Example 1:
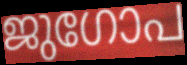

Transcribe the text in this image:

ജുഗോപ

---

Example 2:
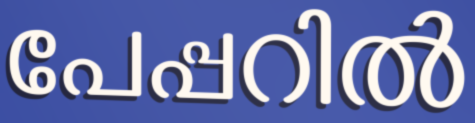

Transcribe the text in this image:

പേപ്പറിൽ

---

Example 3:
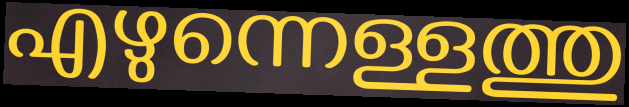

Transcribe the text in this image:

എഴുന്നെള്ളത്തു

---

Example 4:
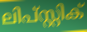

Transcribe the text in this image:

ലിപ്സ്റ്റിക്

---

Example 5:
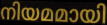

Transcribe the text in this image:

നിയമമായി